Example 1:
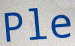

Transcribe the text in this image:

Ple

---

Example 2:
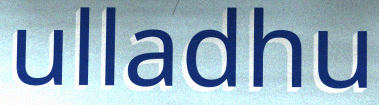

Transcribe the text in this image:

ulladhu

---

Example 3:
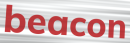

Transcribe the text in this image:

beacon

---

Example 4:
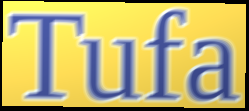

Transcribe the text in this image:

Tufa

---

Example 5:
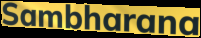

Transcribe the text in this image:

Sambharana